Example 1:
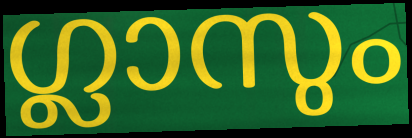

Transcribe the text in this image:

ഗ്ലാസും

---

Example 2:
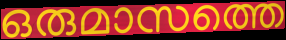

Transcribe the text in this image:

ഒരുമാസത്തെ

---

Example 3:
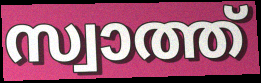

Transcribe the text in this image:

സ്വാത്ത്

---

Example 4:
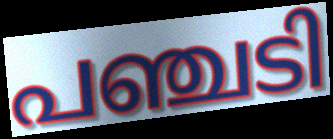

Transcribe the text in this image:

പഞ്ചടി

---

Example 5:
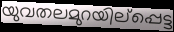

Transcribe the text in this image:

യുവതലമുറയില്പ്പെട്ട